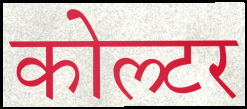
कोल्टर